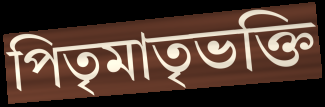
পিতৃমাতৃভক্তি